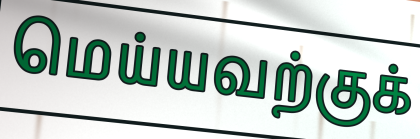
மெய்யவற்குக்